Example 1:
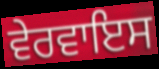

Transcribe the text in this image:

ਵੇਰਵਾਇਸ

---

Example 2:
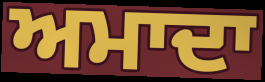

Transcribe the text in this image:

ਅਮਾਦਾ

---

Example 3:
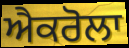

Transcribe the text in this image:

ਐਕਰੋਲਾ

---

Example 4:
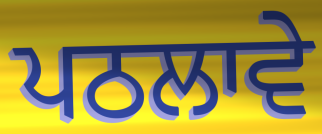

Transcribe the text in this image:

ਪਠਲਾਵੇ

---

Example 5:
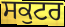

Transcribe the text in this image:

ਸਕੁਟਰ